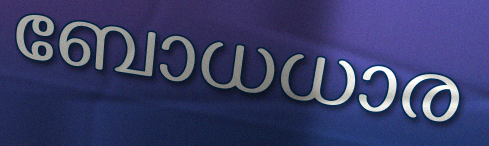
ബോധധാര